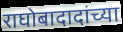
राघोबादादांच्या